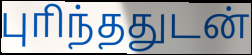
புரிந்ததுடன்